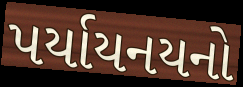
પર્યાયનયનો